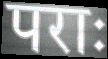
पराः